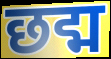
छद्म